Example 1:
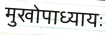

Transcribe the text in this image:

मुखोपाध्यायः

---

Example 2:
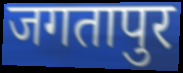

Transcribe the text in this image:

जगतापुर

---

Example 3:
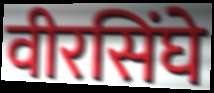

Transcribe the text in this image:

वीरसिंघे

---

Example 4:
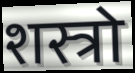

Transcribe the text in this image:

शस्त्रो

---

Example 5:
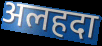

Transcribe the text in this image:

अलहदा